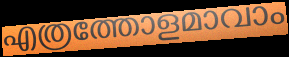
എത്രത്തോളമാവാം